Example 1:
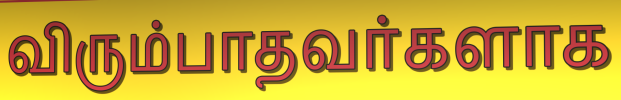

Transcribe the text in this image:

விரும்பாதவர்களாக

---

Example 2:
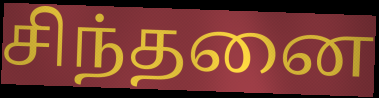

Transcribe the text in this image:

சிந்தனை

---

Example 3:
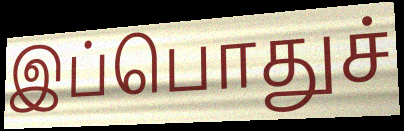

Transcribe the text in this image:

இப்பொதுச்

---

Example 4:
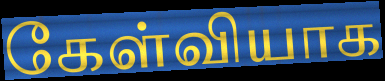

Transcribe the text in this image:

கேள்வியாக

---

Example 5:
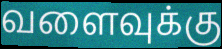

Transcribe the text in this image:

வளைவுக்கு